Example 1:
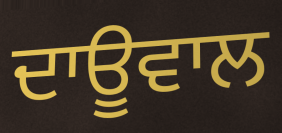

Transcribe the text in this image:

ਦਾਊਵਾਲ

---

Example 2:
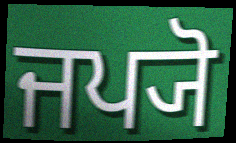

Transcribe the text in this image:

ਜਪ੍ਯੋ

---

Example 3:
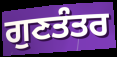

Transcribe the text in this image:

ਗੁਣਤੰਤਰ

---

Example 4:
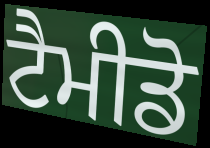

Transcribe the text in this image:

ਟੈਮੀਡੋ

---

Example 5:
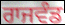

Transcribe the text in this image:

ਰਾਜਵੰਡ